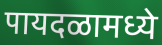
पायदळामध्ये